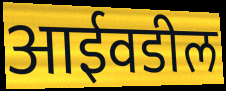
आईवडील